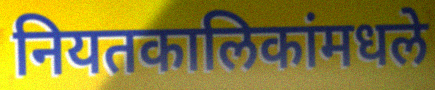
नियतकालिकांमधले